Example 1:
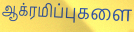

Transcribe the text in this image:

ஆக்ரமிப்புகளை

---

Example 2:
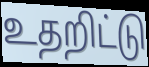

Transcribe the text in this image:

உதறிட்டு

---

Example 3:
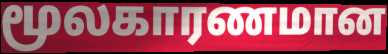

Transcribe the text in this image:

மூலகாரணமான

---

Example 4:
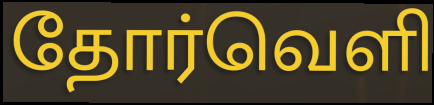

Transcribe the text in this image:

தோர்வெளி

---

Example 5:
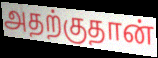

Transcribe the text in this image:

அதற்குதான்